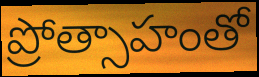
ప్రోత్సాహంతో